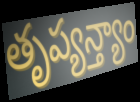
తృప్యన్త్యాం